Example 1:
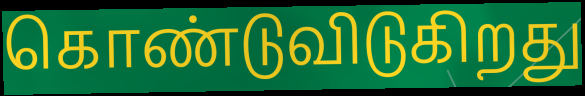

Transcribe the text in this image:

கொண்டுவிடுகிறது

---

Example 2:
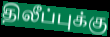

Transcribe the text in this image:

திலீப்புக்கு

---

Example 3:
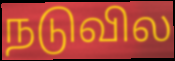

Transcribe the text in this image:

நடுவில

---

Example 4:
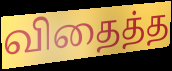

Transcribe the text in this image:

விதைத்த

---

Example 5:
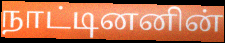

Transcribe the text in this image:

நாட்டினனின்